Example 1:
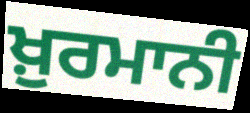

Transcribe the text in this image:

ਖ਼ੁਰਮਾਨੀ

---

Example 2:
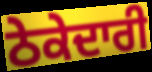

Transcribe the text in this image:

ਠੇਕੇਦਾਰੀ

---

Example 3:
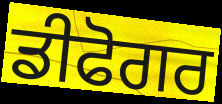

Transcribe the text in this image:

ਡੀਫੋਗਰ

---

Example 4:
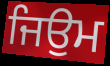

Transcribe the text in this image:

ਜਿਉਮ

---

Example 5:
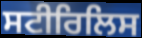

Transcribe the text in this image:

ਸਟੀਰਿਲਿਸ